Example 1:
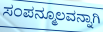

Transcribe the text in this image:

ಸಂಪನ್ಮೂಲವನ್ನಾಗಿ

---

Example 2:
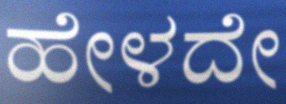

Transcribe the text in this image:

ಹೇಳದೇ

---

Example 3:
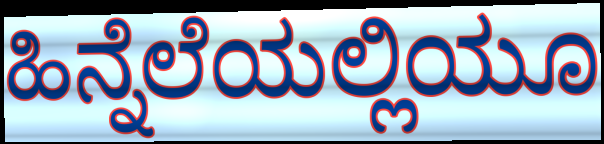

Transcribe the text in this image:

ಹಿನ್ನೆಲೆಯಲ್ಲಿಯೂ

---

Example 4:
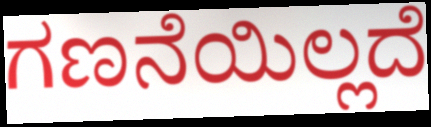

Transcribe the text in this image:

ಗಣನೆಯಿಲ್ಲದೆ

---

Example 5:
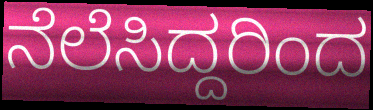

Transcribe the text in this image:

ನೆಲೆಸಿದ್ದರಿಂದ